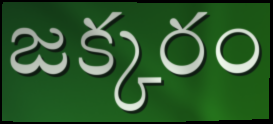
జక్కరం